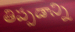
తిప్పడాన్ని